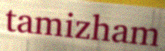
tamizham